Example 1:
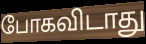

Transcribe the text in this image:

போகவிடாது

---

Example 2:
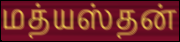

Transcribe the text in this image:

மத்யஸ்தன்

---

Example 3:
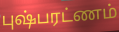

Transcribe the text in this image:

புஷ்பரட்ணம்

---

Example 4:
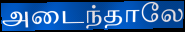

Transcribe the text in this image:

அடைந்தாலே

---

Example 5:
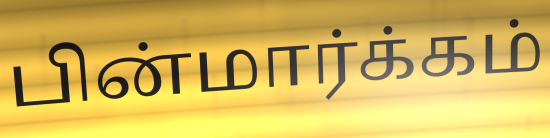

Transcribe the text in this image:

பின்மார்க்கம்